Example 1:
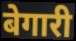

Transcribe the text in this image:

बेगारी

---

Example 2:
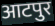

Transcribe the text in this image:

आटपुर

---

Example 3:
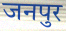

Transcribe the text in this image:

जनपुर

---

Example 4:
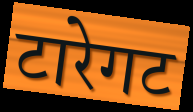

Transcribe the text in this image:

टारेगट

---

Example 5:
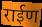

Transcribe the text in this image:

राईण